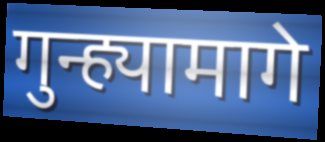
गुन्ह्यामागे